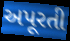
અપૂરતી